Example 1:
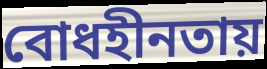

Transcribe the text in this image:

বোধহীনতায়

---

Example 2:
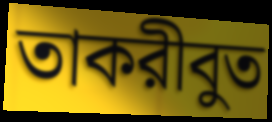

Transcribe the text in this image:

তাকরীবুত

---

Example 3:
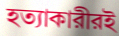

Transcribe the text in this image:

হত্যাকারীরই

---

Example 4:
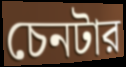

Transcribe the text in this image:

চেনটার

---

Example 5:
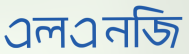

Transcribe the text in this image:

এলএনজি